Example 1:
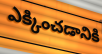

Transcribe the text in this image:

ఎక్కించడానికి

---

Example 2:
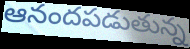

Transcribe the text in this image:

ఆనందపడుతున్న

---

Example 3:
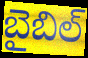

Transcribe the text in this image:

బైబిల్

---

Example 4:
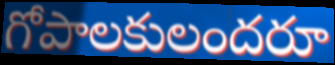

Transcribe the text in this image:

గోపాలకులందరూ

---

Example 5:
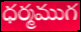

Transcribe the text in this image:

ధర్మముగ